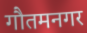
गौतमनगर